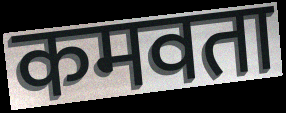
कमवता